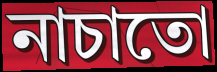
নাচাতো